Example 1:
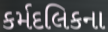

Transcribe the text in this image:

કર્મદલિકના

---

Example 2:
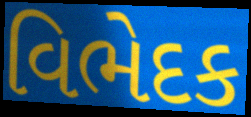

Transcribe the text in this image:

વિભેદક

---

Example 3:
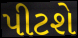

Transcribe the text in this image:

પીટશે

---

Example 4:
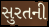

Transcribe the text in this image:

સુરતની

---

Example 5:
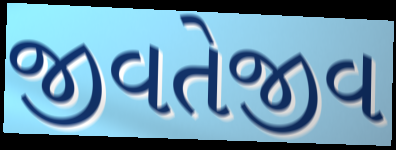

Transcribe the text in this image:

જીવતેજીવ